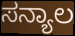
ಸನ್ಯಾಲ